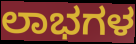
ಲಾಭಗಳ